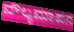
ವೌಲ್ಯಮಾಪನ